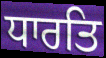
ਧਾਰਤਿ